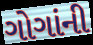
ગોગાંની